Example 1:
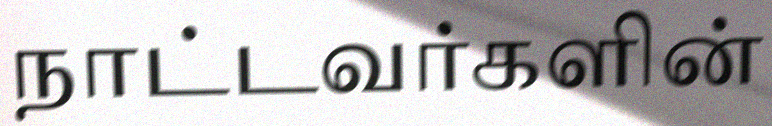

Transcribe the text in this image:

நாட்டவர்களின்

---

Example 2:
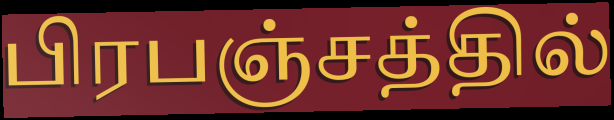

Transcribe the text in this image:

பிரபஞ்சத்தில்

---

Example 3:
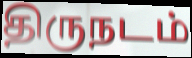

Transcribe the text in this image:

திருநடம்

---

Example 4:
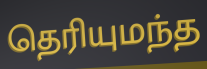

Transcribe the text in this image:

தெரியுமந்த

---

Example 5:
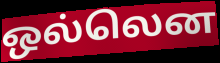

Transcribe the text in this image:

ஒல்லென